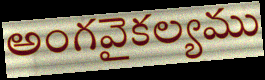
అంగవైకల్యము